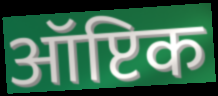
ऑप्टिक